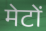
मेटों